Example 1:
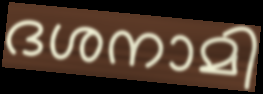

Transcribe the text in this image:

ദശനാമി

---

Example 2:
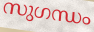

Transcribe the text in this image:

സുഗന്ധം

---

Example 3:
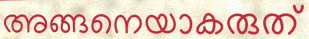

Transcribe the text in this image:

അങ്ങനെയാകരുത്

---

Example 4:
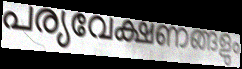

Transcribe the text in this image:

പര്യവേക്ഷണങ്ങളും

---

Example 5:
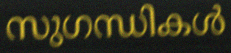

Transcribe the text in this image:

സുഗന്ധികൾ